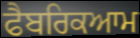
ਫੈਬਰਿਕਆਮ